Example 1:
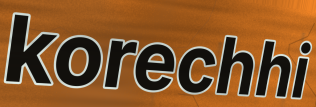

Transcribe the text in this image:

korechhi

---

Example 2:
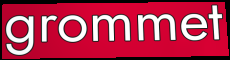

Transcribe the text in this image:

grommet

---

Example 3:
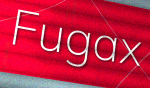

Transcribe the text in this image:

Fugax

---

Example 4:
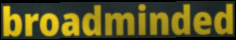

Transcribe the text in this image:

broadminded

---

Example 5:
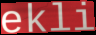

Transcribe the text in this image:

ekli